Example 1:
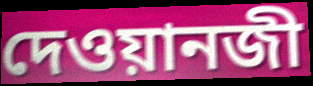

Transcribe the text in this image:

দেওয়ানজী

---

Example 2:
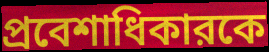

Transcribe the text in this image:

প্রবেশাধিকারকে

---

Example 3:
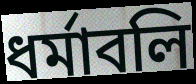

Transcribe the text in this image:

ধর্মাবলি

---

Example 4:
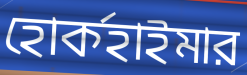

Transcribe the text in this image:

হোর্কহাইমার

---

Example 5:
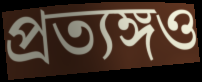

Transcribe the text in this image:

প্রত্যঙ্গও